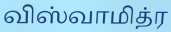
விஸ்வாமித்ர